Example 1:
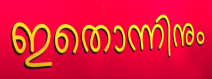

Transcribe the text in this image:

ഇതൊന്നിനും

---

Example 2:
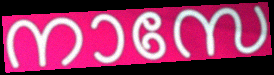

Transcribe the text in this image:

നാസേ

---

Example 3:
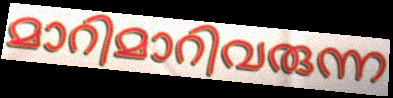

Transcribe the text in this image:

മാറിമാറിവരുന്ന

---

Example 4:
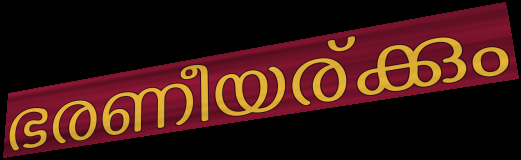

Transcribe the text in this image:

ഭരണീയര്ക്കും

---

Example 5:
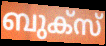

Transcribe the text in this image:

ബുക്സ്